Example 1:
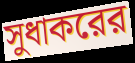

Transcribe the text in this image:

সুধাকরের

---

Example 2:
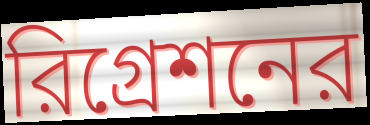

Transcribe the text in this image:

রিগ্রেশনের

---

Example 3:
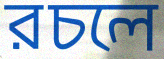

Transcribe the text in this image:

রচলে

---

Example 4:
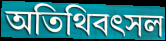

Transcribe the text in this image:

অতিথিবৎসল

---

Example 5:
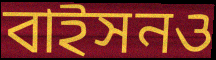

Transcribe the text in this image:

বাইসনও